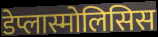
डेप्लास्मोलिसिस